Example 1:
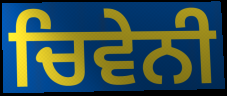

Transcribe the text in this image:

ਚਿਵੇਨੀ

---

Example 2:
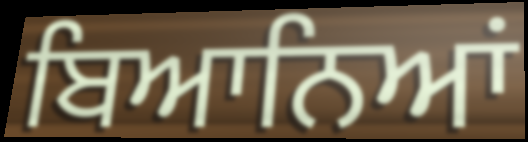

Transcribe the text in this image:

ਬਿਆਨਿਆਂ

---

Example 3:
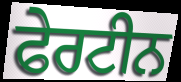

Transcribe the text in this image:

ਫੇਰਟੀਨ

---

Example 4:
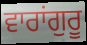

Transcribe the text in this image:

ਵਾਰਾਂਗੁਰੂ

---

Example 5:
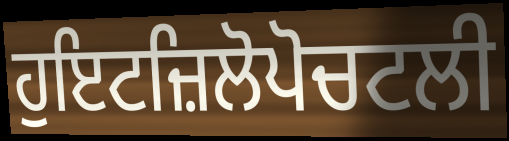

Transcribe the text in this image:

ਹੁਇਟਜ਼ਿਲੋਪੋਚਟਲੀ